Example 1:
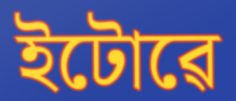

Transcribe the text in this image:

ইটোৱে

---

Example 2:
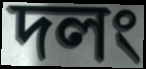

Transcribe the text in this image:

দলং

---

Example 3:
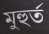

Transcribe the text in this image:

মুহুৰ্ত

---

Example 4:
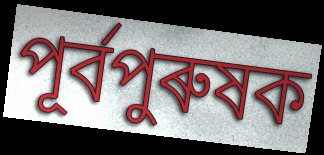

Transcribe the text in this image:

পূৰ্বপুৰুষক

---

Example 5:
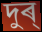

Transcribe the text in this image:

দুৰ্